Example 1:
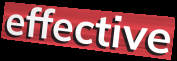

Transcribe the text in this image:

effective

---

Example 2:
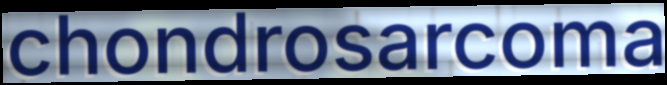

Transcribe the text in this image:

chondrosarcoma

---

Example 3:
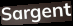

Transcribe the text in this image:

Sargent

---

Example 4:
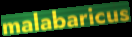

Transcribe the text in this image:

malabaricus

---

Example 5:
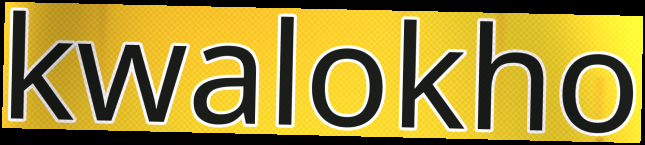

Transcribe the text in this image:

kwalokho